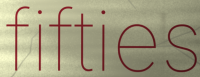
fifties